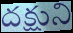
దక్షుని